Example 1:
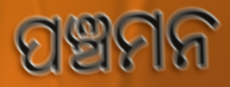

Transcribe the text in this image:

ପଞ୍ଚମନ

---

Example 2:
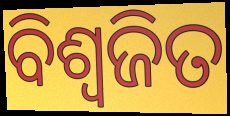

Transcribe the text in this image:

ବିଶ୍ଵଜିତ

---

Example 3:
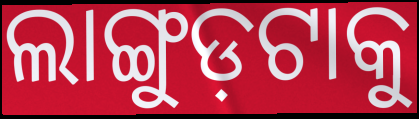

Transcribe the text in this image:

ଲାଙ୍ଗୁଡ଼ଟାକୁ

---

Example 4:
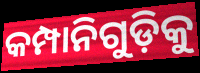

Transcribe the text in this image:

କମ୍ପାନିଗୁଡ଼ିକୁ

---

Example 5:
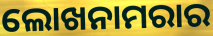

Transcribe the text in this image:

ଲୋଖନାମରାର